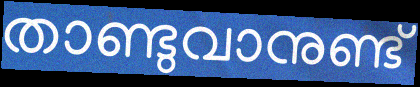
താണ്ടുവാനുണ്ട്